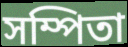
সম্পিতা